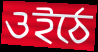
ওইঠে